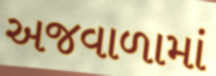
અજવાળામાં